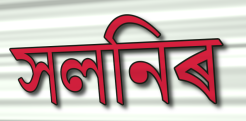
সলনিৰ